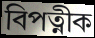
বিপত্নীক